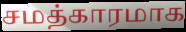
சமத்காரமாக